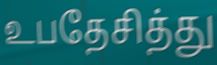
உபதேசித்து